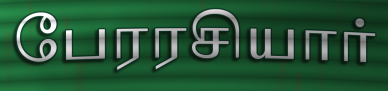
பேரரசியார்